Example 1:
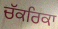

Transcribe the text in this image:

ਚੱਕਰਿਕਾ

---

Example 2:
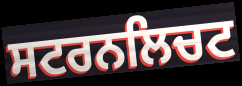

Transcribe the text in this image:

ਸਟਰਨਲਿਚਟ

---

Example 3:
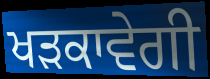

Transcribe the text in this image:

ਖੜਕਾਵੇਗੀ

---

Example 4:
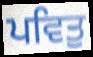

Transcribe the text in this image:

ਪਵਿਤੁ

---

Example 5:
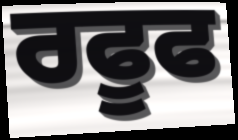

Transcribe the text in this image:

ਰਫੂਫ